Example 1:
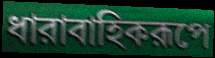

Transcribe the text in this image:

ধারাবাহিকরূপে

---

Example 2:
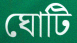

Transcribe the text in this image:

ঘোটি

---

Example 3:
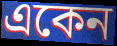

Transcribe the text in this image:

একেন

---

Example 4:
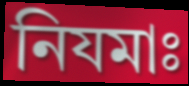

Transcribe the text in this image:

নিযমাঃ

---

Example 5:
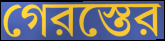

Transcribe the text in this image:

গেরস্তের